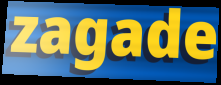
zagade